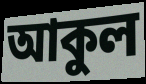
আকুল